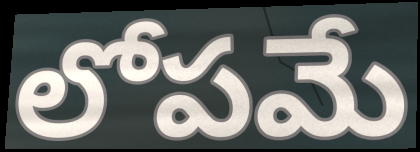
లోపమే